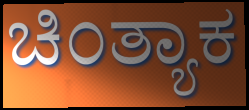
ಚಿಂತ್ಯಾಕ